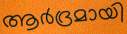
ആർദ്രമായി